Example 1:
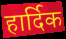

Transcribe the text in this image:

हार्दिक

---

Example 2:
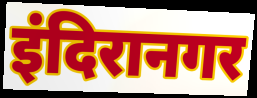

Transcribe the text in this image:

इंदिरानगर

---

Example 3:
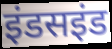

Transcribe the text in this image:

इंडसइंड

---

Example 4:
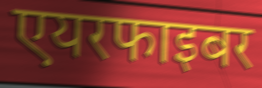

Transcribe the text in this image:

एयरफाइबर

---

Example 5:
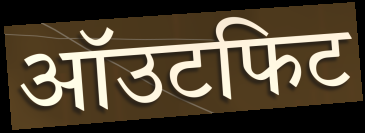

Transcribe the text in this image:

ऑउटफिट